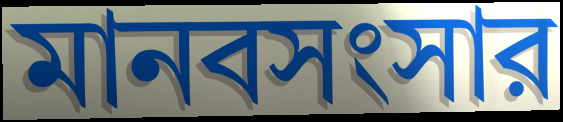
মানবসংসার